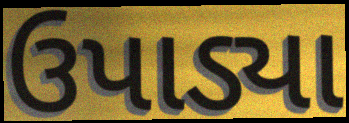
ઉપાડ્યા